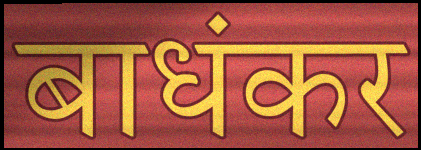
बाधंकर